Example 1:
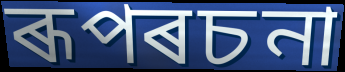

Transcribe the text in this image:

ৰূপৰচনা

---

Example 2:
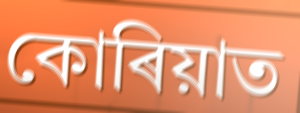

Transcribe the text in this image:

কোৰিয়াত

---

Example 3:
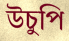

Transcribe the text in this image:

উচুপি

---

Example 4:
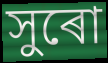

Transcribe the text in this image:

সুৰো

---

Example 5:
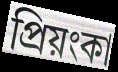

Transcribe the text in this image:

প্ৰিয়ংকা